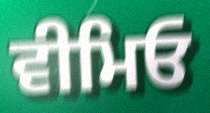
ਵੀਮਿਓ